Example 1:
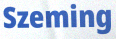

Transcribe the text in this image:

Szeming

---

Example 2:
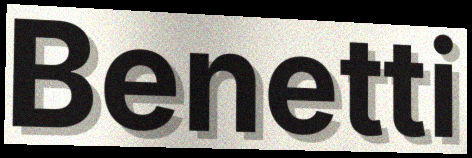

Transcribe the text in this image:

Benetti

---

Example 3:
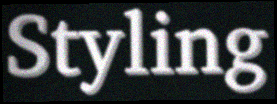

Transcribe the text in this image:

Styling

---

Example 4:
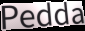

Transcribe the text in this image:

Pedda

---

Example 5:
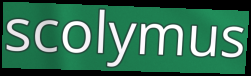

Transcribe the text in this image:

scolymus